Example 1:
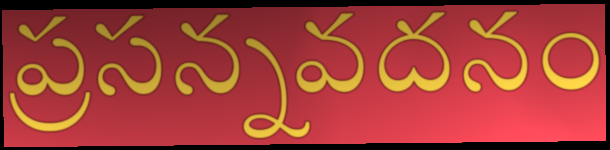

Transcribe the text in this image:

ప్రసన్నవదనం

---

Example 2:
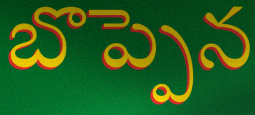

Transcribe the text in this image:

బొప్పెన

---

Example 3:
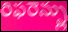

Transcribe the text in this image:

రిఫరెన్స్లు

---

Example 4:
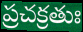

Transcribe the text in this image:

ప్రచక్రతుః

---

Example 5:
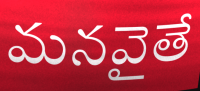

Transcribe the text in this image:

మనవైతే